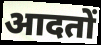
आदतों